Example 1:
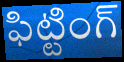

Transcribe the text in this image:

ఫిట్టింగ్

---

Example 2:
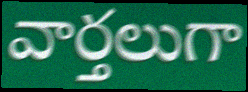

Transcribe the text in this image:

వార్తలుగా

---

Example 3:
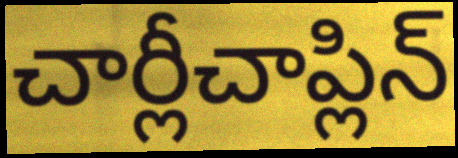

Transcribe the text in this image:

చార్లీచాప్లిన్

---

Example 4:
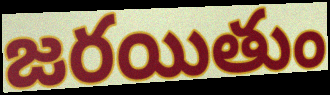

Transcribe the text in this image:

జరయితుం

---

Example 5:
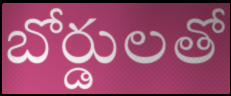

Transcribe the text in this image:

బోర్డులతో